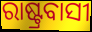
ରାଷ୍ଟ୍ରବାସୀ